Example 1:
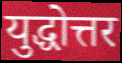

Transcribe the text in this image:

युद्धोत्तर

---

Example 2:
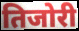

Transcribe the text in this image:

तिजोरी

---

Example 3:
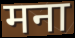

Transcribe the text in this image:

मना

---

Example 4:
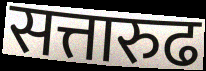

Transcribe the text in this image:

सत्तारुढ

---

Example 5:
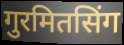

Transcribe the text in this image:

गुरमितसिंग